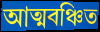
আত্মবঞ্চিত